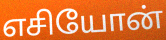
எசியோன்